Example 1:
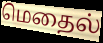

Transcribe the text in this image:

மெதைல்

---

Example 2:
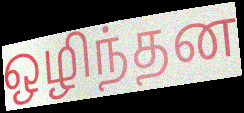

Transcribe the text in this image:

ஒழிந்தன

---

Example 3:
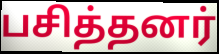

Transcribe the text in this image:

பசித்தனர்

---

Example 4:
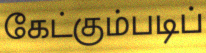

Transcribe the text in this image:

கேட்கும்படிப்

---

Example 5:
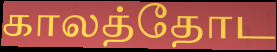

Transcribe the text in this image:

காலத்தோட